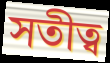
সতীত্ব